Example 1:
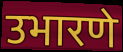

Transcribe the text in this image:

उभारणे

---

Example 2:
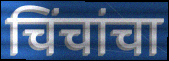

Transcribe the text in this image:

चिंचांचा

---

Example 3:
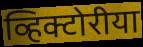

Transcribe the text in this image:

व्हिक्टोरीया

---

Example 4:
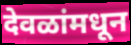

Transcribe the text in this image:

देवळांमधून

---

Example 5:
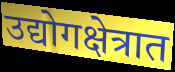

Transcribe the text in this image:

उद्योगक्षेत्रात